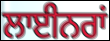
ਲਾਈਨਰਾਂ